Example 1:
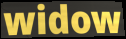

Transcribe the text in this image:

widow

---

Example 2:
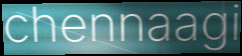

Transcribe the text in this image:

chennaagi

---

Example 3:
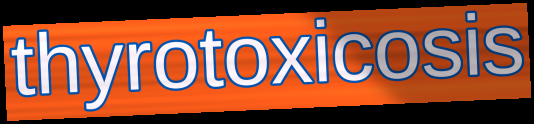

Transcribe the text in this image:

thyrotoxicosis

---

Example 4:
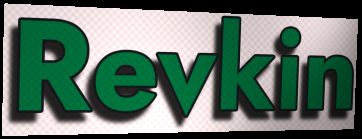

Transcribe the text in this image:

Revkin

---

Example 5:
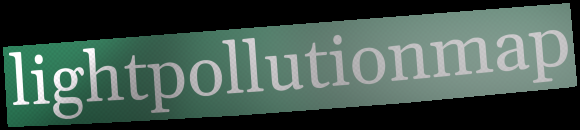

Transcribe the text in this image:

lightpollutionmap